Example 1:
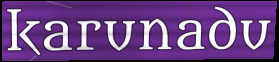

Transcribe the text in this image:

karunadu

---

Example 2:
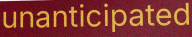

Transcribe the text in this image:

unanticipated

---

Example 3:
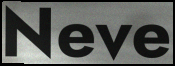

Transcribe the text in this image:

Neve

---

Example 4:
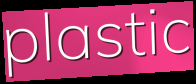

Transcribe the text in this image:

plastic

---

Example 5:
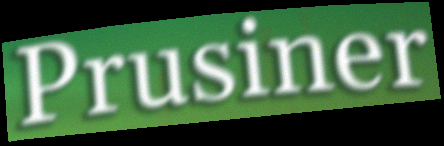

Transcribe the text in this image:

Prusiner